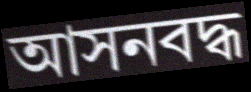
আসনবদ্ধ